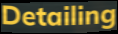
Detailing